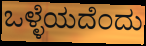
ಒಳ್ಳೆಯದೆಂದು